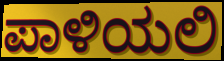
ಪಾಳಿಯಲಿ